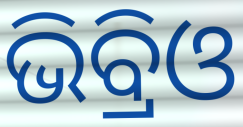
ଭିବ୍ରିଓ